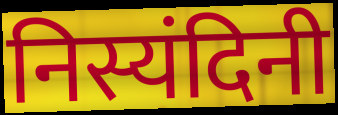
निस्यंदिनी